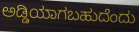
ಅಡ್ಡಿಯಾಗಬಹುದೆಂದು